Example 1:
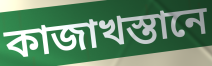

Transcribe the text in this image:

কাজাখস্তানে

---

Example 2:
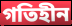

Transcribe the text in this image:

গতিহীন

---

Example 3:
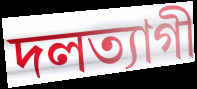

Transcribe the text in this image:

দলত্যাগী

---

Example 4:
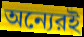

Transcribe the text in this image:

অন্যেরই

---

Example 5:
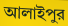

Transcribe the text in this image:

আলাইপুর